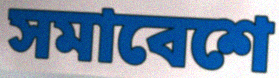
সমাবেশে